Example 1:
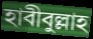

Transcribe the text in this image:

হাবীবুল্লাহ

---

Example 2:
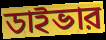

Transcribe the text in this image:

ডাইভার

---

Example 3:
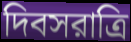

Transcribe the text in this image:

দিবসরাত্রি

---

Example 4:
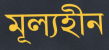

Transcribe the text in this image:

মূল্যহীন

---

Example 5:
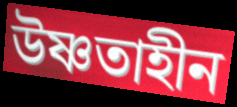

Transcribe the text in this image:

উষ্ণতাহীন